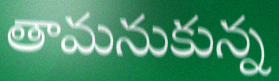
తామనుకున్న